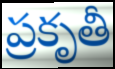
ప్రకృతీ